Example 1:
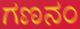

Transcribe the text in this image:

ಗಣನಂ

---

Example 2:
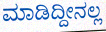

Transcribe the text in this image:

ಮಾಡಿದ್ದೀನಲ್ಲ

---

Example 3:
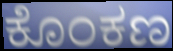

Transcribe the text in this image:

ಕೊಂಕಣ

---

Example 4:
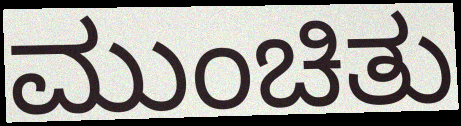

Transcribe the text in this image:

ಮುಂಚಿತು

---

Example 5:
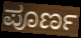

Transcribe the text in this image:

ಪೂರ್ಣ